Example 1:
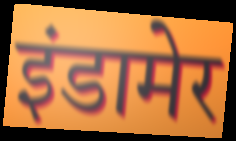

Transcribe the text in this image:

इंडामेर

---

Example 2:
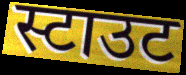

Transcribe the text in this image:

स्टाउट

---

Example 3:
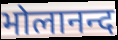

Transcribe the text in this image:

भोलानन्द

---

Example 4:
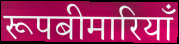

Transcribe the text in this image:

रूपबीमारियाँ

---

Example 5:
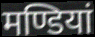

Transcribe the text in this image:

मण्डियां